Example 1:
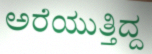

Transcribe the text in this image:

ಅರೆಯುತ್ತಿದ್ದ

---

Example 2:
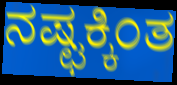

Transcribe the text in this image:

ನಷ್ಟಕ್ಕಿಂತ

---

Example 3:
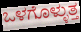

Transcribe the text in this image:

ಒಳಗೊಳ್ಳುತ್ತ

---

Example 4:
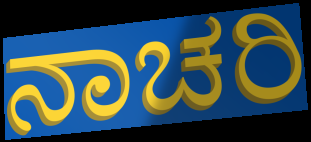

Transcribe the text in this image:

ನಾಚರಿ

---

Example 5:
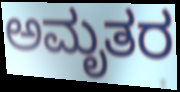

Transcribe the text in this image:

ಅಮೃತರ